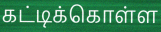
கட்டிக்கொள்ள